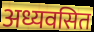
अध्यवसित